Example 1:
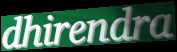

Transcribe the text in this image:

dhirendra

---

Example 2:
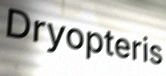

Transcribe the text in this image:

Dryopteris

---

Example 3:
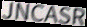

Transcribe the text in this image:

JNCASR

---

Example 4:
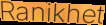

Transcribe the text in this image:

Ranikhet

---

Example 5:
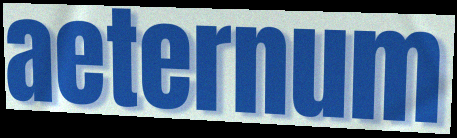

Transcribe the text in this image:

aeternum